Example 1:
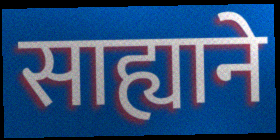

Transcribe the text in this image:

साह्याने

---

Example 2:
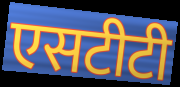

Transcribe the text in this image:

एसटीटी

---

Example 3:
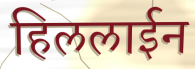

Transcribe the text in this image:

हिललाईन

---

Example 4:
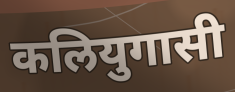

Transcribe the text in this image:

कलियुगासी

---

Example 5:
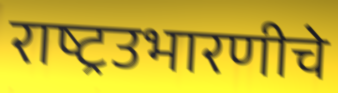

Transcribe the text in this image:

राष्ट्रउभारणीचे